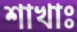
শাখাঃ